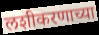
लशीकरणाच्या